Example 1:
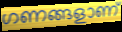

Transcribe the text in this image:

ഗണങ്ങളാണ്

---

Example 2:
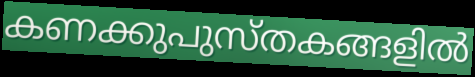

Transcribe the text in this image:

കണക്കുപുസ്തകങ്ങളിൽ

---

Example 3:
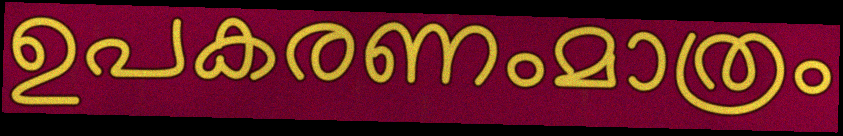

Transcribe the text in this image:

ഉപകരണംമാത്രം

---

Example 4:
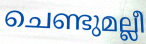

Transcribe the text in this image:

ചെണ്ടുമല്ലീ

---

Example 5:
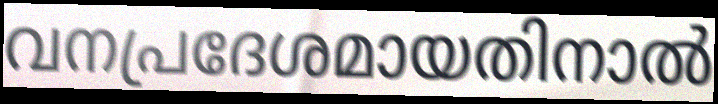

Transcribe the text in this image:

വനപ്രദേശമായതിനാൽ